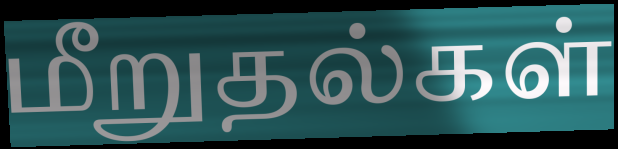
மீறுதல்கள்